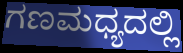
ಗಣಮಧ್ಯದಲ್ಲಿ